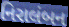
નિરાલંબન